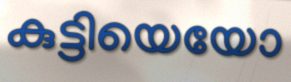
കുട്ടിയെയോ